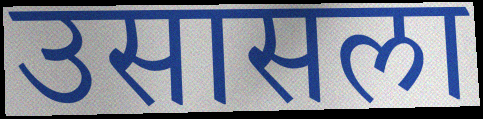
उसासला